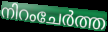
നിറംചേർത്ത